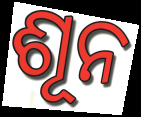
ଶୂନ